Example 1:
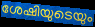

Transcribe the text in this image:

ശേഷിയുടെയും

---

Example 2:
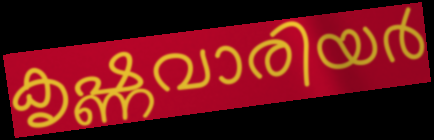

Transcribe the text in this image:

കൃഷ്ണവാരിയർ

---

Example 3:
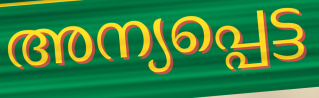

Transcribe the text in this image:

അന്യപ്പെട്ട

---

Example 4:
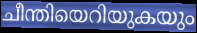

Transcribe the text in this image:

ചീന്തിയെറിയുകയും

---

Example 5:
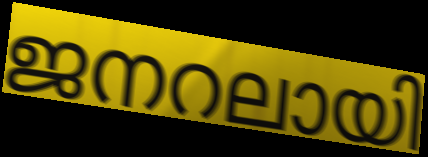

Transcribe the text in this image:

ജനറലായി